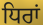
ਧਿਰਾਂ